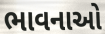
ભાવનાઓ